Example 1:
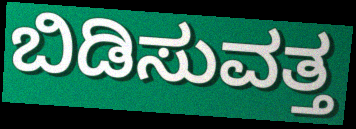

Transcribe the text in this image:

ಬಿಡಿಸುವತ್ತ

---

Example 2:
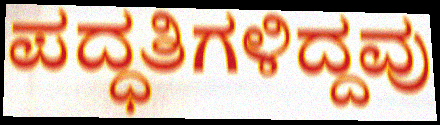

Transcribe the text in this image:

ಪದ್ಧತಿಗಳಿದ್ದವು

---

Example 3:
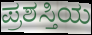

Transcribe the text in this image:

ಪ್ರಶಸ್ತಿಯ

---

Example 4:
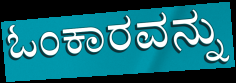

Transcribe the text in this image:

ಓಂಕಾರವನ್ನು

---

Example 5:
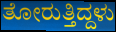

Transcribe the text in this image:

ತೋರುತ್ತಿದ್ದಳು